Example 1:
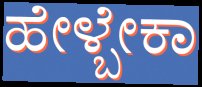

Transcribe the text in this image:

ಹೇಳ್ಬೇಕಾ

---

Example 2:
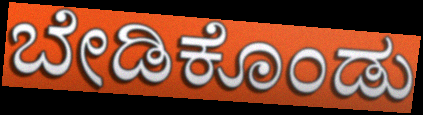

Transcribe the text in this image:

ಬೇಡಿಕೊಂಡು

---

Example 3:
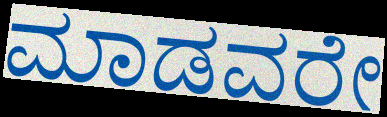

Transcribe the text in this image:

ಮಾಡವರೇ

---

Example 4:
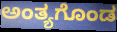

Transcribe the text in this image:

ಅಂತ್ಯಗೊಂಡ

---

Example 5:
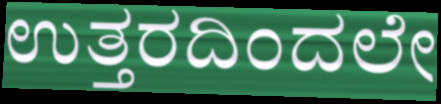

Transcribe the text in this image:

ಉತ್ತರದಿಂದಲೇ